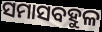
ସମାସବହୁଳ